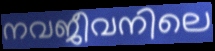
നവജീവനിലെ